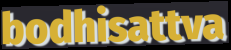
bodhisattva